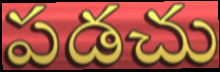
పడచు